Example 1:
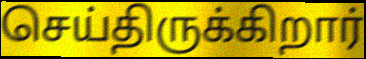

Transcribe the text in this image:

செய்திருக்கிறார்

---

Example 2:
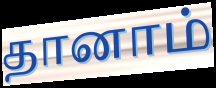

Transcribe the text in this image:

தானாம்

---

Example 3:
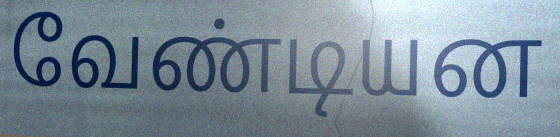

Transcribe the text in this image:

வேண்டியன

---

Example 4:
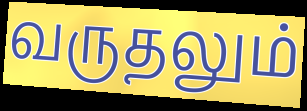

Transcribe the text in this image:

வருதலும்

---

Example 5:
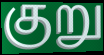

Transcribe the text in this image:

குறு